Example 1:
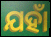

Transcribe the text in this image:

ଯହାଁ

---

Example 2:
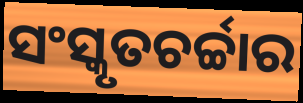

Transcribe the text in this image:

ସଂସ୍କୃତଚର୍ଚ୍ଚାର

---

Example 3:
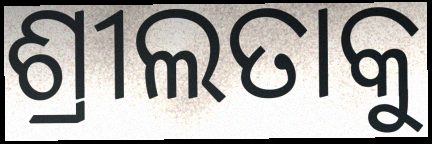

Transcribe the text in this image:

ଶ୍ରୀଲତାକୁ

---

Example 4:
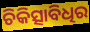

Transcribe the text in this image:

ଚିକିତ୍ସାବିଧିର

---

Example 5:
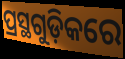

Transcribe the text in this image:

ପ୍ରସ୍ଥଗୁଡ଼ିକରେ